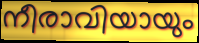
നീരാവിയായും